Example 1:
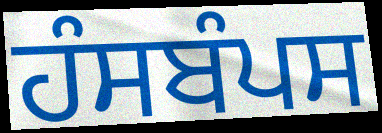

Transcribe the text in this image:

ਹੰਸਬੰਪਸ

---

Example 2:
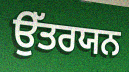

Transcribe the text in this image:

ਉੱਤਰਯਨ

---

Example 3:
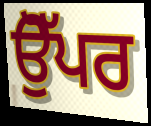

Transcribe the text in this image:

ਉੋੱਪਰ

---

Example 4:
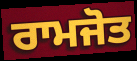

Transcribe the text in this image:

ਰਾਮਜੋਤ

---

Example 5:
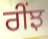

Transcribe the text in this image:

ਰੀਂਝ